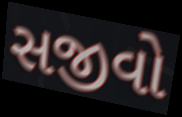
સજીવો